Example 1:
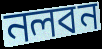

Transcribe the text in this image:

নলবন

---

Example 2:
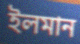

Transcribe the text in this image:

ইলমান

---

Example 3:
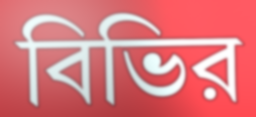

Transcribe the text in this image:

বিভির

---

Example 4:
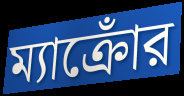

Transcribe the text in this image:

ম্যাক্রোঁর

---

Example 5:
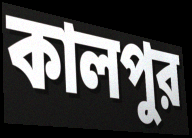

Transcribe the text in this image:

কালপুর